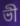
ভী